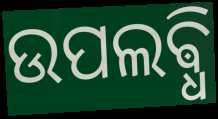
ଉପଲଵ୍ଧି